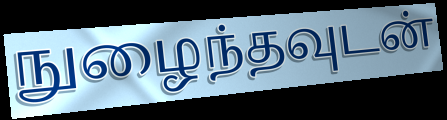
நுழைந்தவுடன்